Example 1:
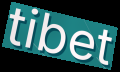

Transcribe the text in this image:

tibet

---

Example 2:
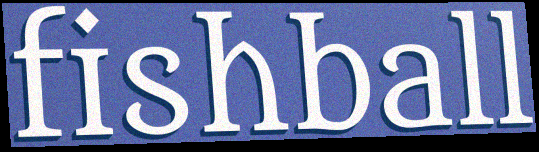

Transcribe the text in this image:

fishball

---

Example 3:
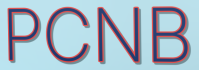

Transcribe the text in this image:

PCNB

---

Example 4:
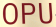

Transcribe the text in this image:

OPU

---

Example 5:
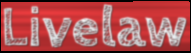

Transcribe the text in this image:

Livelaw